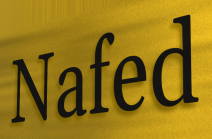
Nafed